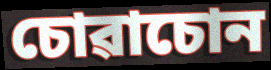
চোৱাচোন